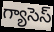
గ్యాసెస్